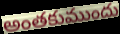
అంతకుముందు